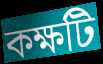
কক্ষটি